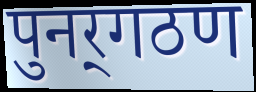
पुनर्गठण